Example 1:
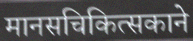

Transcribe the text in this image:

मानसचिकित्सकाने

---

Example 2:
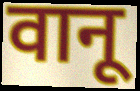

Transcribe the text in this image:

वानू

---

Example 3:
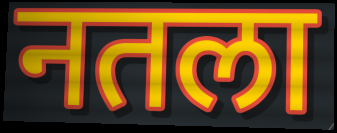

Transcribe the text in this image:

नतला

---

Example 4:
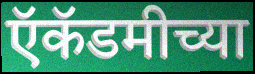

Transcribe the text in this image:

ऍकॅडमीच्या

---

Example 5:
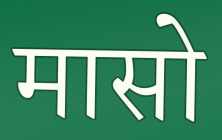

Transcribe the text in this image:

मासो